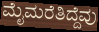
ಮೈಮರೆತಿದ್ದೆವು